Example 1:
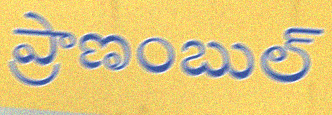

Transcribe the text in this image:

ప్రాణంబుల్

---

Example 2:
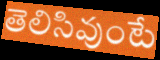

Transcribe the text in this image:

తెలిసివుంటే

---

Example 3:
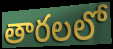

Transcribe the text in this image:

తారలలో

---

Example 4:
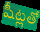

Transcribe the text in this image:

షీట్లతో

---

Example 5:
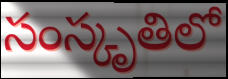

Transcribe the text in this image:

సంస్కృతిలో